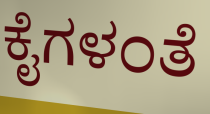
ಕೈಗಳಂತೆ